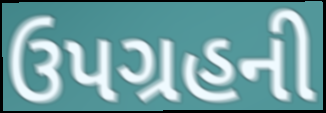
ઉપગ્રહની